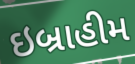
ઇબ્રાહીમ